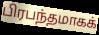
பிரபந்தமாகக்